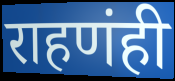
राहणंही